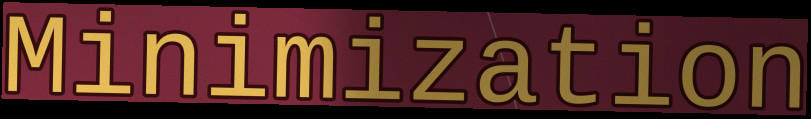
Minimization